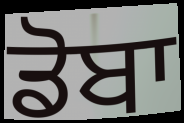
ਡੋਬਾ